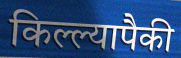
किल्ल्यापैकी